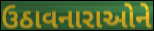
ઉઠાવનારાઓને